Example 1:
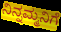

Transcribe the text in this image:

ನಿನ್ನಮ್ಮನಿಗೆ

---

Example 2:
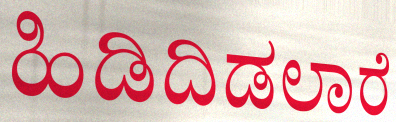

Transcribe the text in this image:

ಹಿಡಿದಿಡಲಾರೆ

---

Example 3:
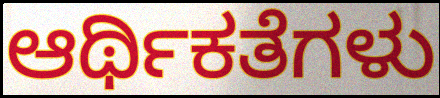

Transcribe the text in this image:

ಆರ್ಥಿಕತೆಗಳು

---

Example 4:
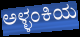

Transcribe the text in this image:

ಅಳ್ಳಂಕಿಯ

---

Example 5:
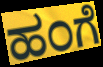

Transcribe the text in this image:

ಹಂಗೆ